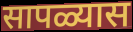
सापळ्यास